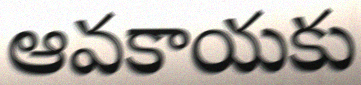
ఆవకాయకు